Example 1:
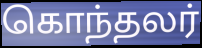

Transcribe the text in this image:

கொந்தலர்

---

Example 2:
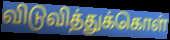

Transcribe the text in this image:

விடுவித்துக்கொள்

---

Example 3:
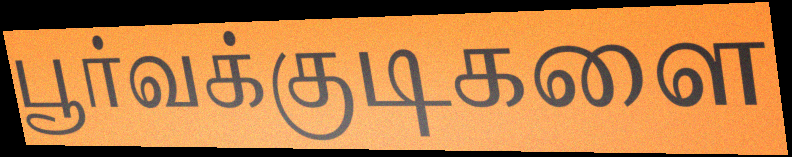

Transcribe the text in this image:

பூர்வக்குடிகளை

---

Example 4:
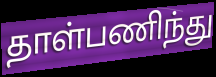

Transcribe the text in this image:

தாள்பணிந்து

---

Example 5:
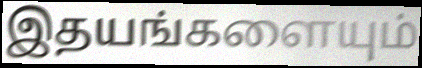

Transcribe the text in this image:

இதயங்களையும்